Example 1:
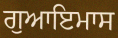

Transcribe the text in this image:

ਗੁਆਇਮਾਸ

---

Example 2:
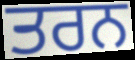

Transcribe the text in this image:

ਤਰਨ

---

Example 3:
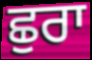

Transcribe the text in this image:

ਛੁਰਾ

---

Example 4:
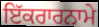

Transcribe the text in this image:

ਇੱਕਰਾਰਨਾਮੇ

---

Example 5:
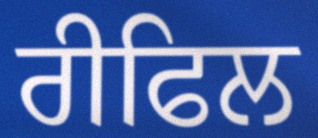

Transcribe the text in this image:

ਰੀਫਿਲ